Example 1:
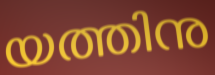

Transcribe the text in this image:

യത്തിനു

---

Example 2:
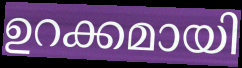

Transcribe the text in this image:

ഉറക്കമായി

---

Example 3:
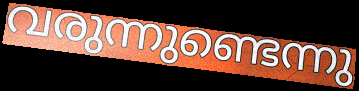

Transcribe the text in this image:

വരുന്നുണ്ടെന്നു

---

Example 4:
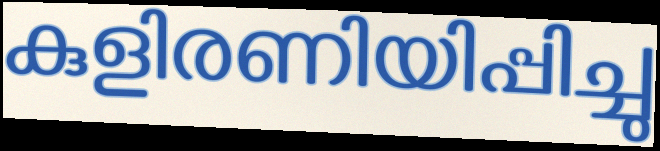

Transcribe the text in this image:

കുളിരണിയിപ്പിച്ചു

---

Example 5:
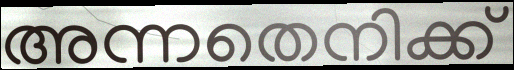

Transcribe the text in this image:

അന്നതെനിക്ക്